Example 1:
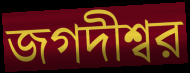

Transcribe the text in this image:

জগদীশ্বর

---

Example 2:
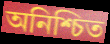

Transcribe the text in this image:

অনিশ্চিত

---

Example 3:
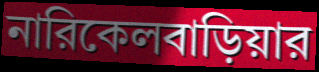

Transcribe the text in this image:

নারিকেলবাড়িয়ার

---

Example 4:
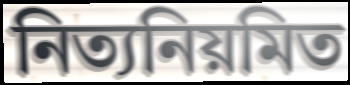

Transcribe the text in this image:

নিত্যনিয়মিত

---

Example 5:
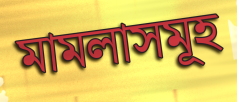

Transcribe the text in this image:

মামলাসমূহ